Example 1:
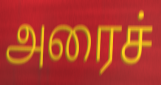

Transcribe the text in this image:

அரைச்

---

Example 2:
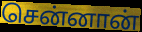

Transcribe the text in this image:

சென்னான்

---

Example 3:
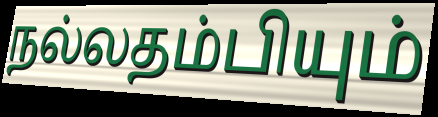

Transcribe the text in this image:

நல்லதம்பியும்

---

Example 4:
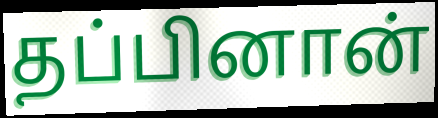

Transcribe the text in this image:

தப்பினான்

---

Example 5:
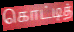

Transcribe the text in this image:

கொட்டித்